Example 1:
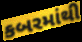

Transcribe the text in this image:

કબરમાંથી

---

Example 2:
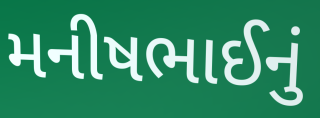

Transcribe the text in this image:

મનીષભાઈનું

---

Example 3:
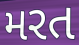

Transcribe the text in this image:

મરત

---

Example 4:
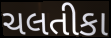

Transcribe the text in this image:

ચલતીકા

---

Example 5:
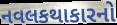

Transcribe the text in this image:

નવલકથાકારનો